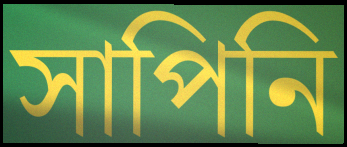
সাপিনি